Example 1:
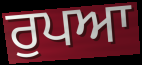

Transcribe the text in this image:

ਰੁਪਆ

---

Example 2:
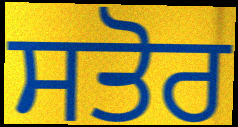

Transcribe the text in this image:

ਸਤੋਰ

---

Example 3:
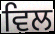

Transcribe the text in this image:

ਵਿਲ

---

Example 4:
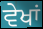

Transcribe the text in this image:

ਵੇਖਾਂ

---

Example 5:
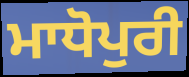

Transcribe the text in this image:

ਮਾਧੋਪੁਰੀ